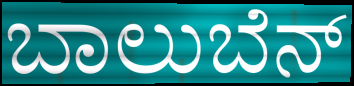
ಬಾಲುಬೆನ್